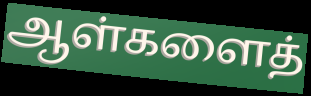
ஆள்களைத்